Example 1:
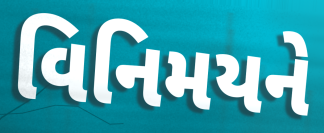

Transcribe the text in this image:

વિનિમયને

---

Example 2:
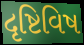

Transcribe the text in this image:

દૃષ્ટિવિષ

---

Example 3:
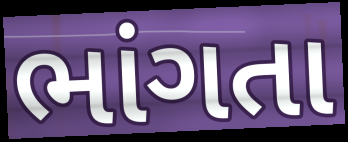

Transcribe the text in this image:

ભાંગતા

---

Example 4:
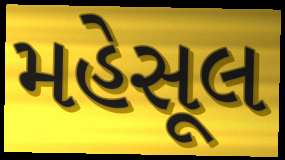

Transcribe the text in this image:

મહેસૂલ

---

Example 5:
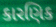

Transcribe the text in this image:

કારણિક